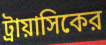
ট্রায়াসিকের